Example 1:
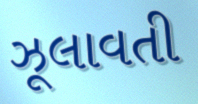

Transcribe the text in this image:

ઝૂલાવતી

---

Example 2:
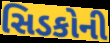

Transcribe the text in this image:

સિડકોની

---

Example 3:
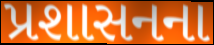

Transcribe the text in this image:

પ્રશાસનના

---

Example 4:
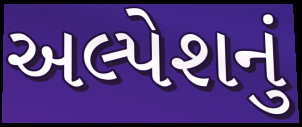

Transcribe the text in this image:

અલ્પેશનું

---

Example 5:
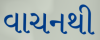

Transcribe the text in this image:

વાચનથી